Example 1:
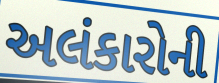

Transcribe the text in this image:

અલંકારોની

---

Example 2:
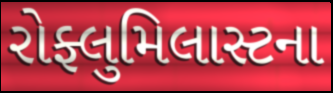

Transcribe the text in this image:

રોફ્લુમિલાસ્ટના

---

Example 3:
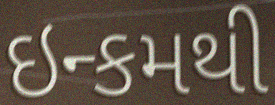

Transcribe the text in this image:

ઇન્કમથી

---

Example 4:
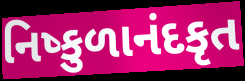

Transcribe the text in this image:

નિષ્કુળાનંદકૃત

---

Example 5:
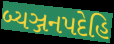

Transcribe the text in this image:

બ્યઞ્જનપદેહિ